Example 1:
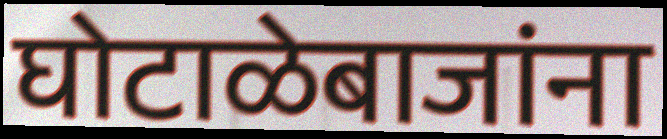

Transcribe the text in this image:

घोटाळेबाजांना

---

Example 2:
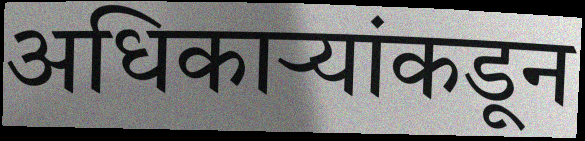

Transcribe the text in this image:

अधिकाऱ्यांकडून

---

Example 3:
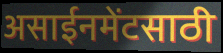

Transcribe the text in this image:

असाईनमेंटसाठी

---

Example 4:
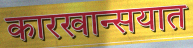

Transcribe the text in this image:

कारखान्सयात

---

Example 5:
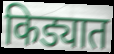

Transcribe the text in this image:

किड्यात